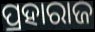
ପ୍ରହାରାଜ